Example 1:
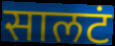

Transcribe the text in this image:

सालटं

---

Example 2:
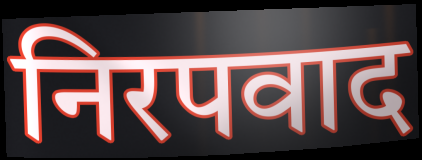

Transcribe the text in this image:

निरपवाद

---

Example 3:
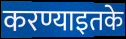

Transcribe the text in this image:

करण्याइतके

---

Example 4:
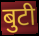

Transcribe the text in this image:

बुटी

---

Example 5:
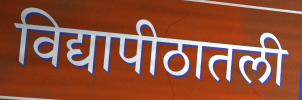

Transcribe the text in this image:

विद्यापीठातली